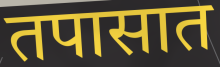
तपासात